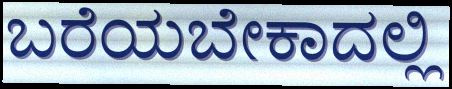
ಬರೆಯಬೇಕಾದಲ್ಲಿ